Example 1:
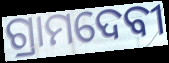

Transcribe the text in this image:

ଗ୍ରାମଦେବୀ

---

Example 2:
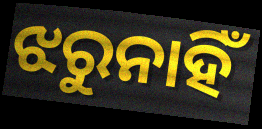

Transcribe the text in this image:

ଝରୁନାହିଁ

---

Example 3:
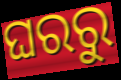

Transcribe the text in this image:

ଘରରୁ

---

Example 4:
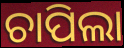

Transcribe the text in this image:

ଚାପିଲା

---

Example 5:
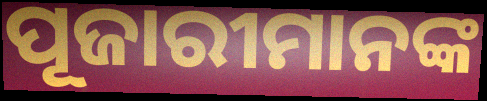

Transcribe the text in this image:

ପୂଜାରୀମାନଙ୍କ